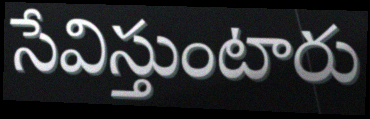
సేవిస్తుంటారు